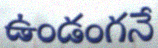
ఉండంగనే